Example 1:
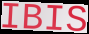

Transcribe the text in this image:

IBIS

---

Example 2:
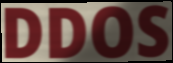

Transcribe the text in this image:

DDOS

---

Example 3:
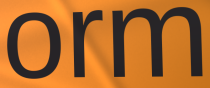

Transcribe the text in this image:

orm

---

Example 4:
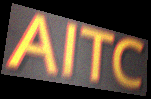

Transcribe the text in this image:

AITC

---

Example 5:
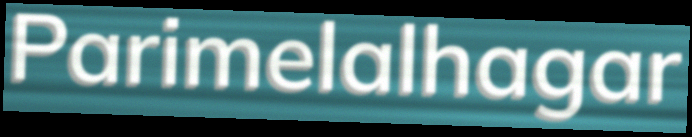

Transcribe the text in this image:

Parimelalhagar